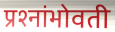
प्रश्नांभोवती